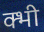
क्भी